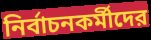
নির্বাচনকর্মীদের